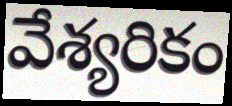
వేశ్యరికం